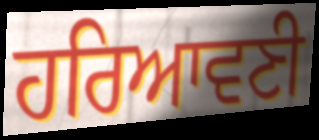
ਹਰਿਆਵਣੀ